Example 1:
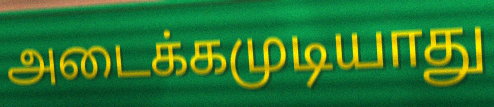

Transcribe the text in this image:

அடைக்கமுடியாது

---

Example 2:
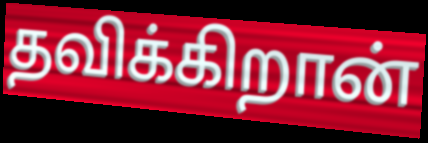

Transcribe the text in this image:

தவிக்கிறான்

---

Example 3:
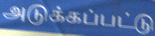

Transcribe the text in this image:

அடுக்கப்பட்டு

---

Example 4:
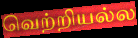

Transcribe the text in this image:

வெற்றியல்ல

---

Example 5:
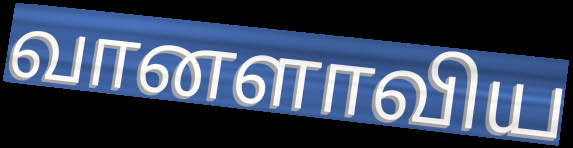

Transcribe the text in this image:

வானளாவிய